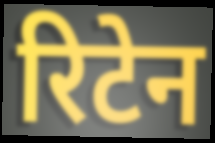
रिटेन